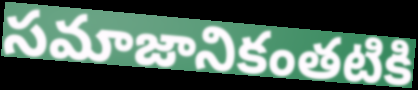
సమాజానికంతటికి